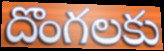
దొంగలకు